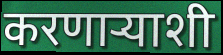
करणाऱ्याशी